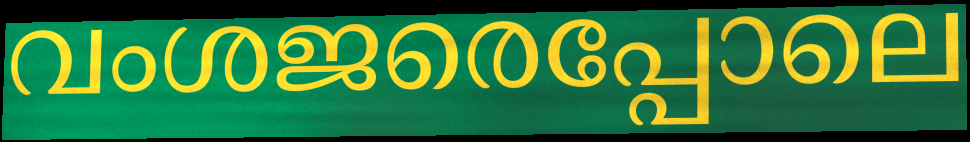
വംശജരെപ്പോലെ